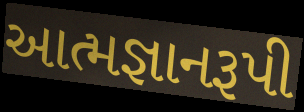
આત્મજ્ઞાનરૂપી